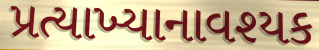
પ્રત્યાખ્યાનાવશ્યક